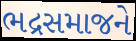
ભદ્રસમાજને